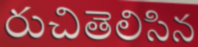
రుచితెలిసిన